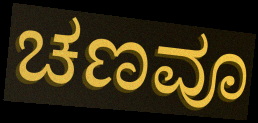
ಚಣವೂ